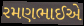
રમણભાઈએ